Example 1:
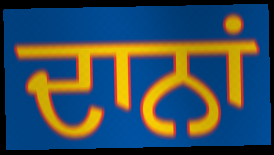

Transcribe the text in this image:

ਦਾਨਾਂ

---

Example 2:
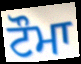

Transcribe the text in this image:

ਟੌਮਾ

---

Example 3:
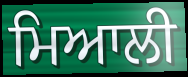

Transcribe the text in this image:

ਮਿਆਲੀ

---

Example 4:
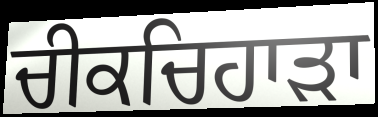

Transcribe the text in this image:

ਚੀਕਚਿਹਾੜਾ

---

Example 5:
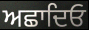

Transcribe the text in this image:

ਅਛਾਦਿਓ